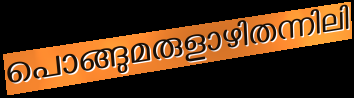
പൊങ്ങുമരുളാഴിതന്നിലി